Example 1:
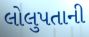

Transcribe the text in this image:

લોલુપતાની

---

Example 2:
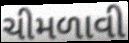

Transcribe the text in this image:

ચીમળાવી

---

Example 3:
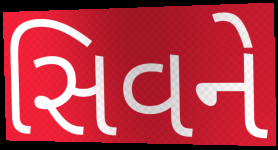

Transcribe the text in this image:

સિવને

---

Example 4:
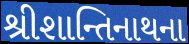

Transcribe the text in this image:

શ્રીશાન્તિનાથના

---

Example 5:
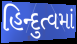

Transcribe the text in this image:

હિન્દુત્વમાં